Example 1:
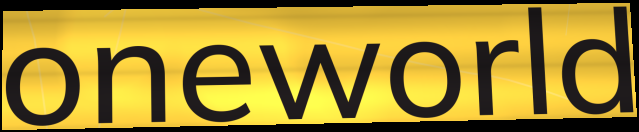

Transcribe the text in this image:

oneworld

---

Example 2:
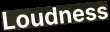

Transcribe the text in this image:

Loudness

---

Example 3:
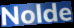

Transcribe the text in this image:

Nolde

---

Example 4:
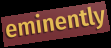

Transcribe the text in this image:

eminently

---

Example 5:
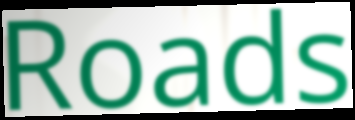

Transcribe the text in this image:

Roads